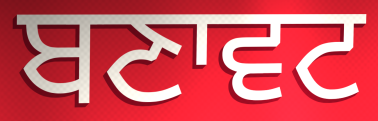
ਬਣਾਵਟ